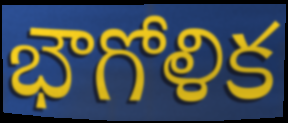
భౌగోళిక